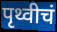
पृथ्वीचं